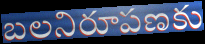
బలనిరూపణకు